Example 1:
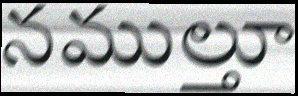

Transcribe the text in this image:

నముల్తూ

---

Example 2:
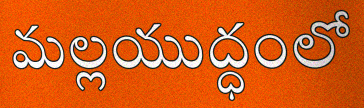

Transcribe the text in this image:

మల్లయుద్ధంలో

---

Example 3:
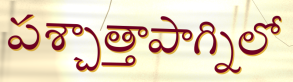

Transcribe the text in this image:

పశ్చాత్తాపాగ్నిలో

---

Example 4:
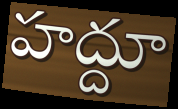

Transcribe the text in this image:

హద్దూ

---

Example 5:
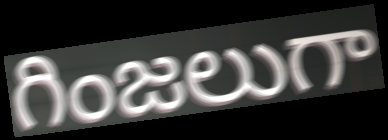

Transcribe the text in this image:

గింజలుగా